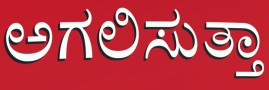
ಅಗಲಿಸುತ್ತಾ